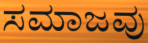
ಸಮಾಜವು